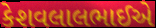
કેશવલાલભાઈએ